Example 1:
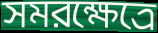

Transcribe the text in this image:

সমরক্ষেত্রে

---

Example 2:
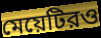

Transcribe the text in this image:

মেয়েটিরও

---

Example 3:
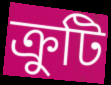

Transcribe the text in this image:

ক্রুটি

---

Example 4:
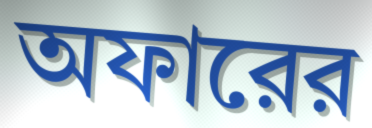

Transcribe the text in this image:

অফারের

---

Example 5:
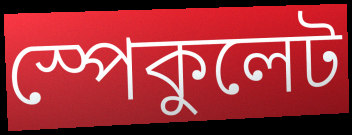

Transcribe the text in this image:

স্পেকুলেট